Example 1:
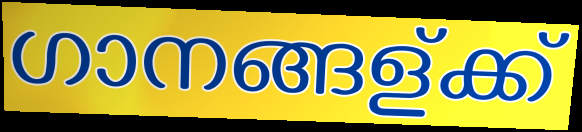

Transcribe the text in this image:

ഗാനങ്ങള്ക്ക്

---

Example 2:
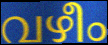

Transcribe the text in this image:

വഴീം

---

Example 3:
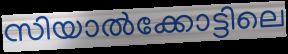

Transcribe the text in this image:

സിയാൽക്കോട്ടിലെ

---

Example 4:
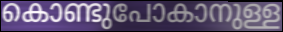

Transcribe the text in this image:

കൊണ്ടുപോകാനുള്ള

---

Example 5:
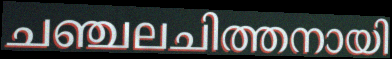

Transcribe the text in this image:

ചഞ്ചലചിത്തനായി